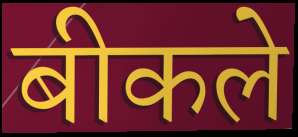
बीकले